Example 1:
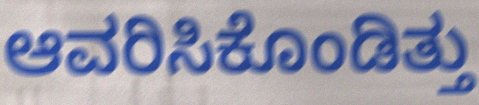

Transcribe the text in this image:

ಆವರಿಸಿಕೊಂಡಿತ್ತು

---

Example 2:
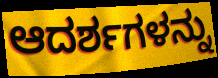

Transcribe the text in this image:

ಆದರ್ಶಗಳನ್ನು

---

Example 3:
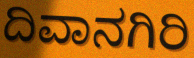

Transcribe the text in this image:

ದಿವಾನಗಿರಿ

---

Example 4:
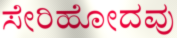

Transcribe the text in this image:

ಸೇರಿಹೋದವು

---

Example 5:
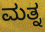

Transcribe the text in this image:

ಮತ್ನ